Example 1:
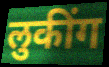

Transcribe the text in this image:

लुकींग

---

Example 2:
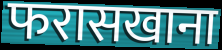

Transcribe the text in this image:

फरासखाना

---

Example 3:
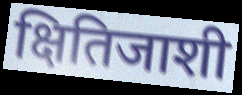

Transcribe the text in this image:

क्षितिजाशी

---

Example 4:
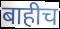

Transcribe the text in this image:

बाहीच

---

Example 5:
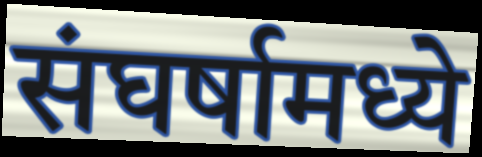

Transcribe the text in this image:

संघर्षामध्ये